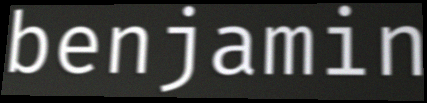
benjamin